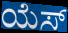
ಯೆಸ್